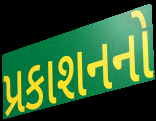
પ્રકાશનનો